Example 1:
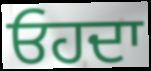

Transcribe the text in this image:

ਓਹਦਾ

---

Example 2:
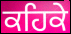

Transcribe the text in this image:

ਕਹਿਕੇ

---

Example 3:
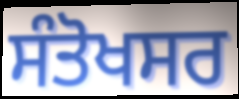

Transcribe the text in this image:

ਸੰਤੋਖਸਰ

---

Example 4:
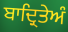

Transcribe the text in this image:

ਬਾਦ੍ਰਿਤੇਅੰ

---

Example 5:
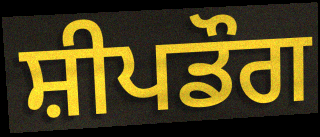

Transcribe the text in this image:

ਸ਼ੀਪਡੌਗ